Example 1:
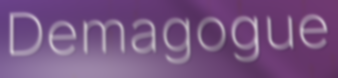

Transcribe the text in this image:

Demagogue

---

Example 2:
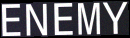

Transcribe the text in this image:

ENEMY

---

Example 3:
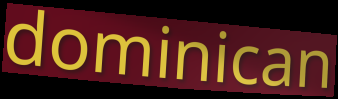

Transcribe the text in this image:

dominican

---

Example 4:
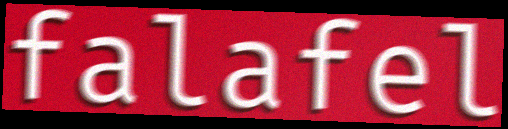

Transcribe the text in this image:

falafel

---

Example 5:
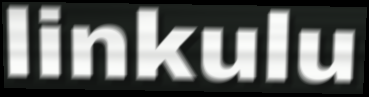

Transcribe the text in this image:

linkulu